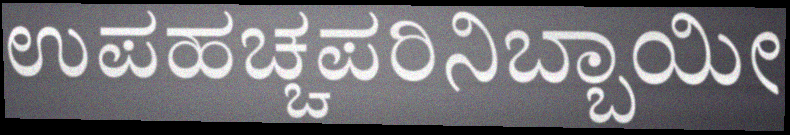
ಉಪಹಚ್ಚಪರಿನಿಬ್ಬಾಯೀ